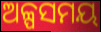
ଅଳ୍ପସମୟ